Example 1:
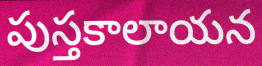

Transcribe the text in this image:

పుస్తకాలాయన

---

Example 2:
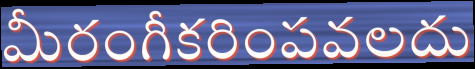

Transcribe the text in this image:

మీరంగీకరింపవలదు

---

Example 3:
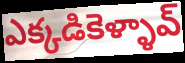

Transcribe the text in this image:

ఎక్కడికెళ్ళావ్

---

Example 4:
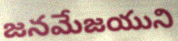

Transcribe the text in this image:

జనమేజయుని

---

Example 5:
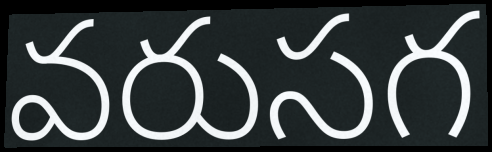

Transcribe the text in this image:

వరుసగ